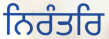
ਨਿਰੰਤਰਿ